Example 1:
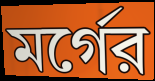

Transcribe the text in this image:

মর্গের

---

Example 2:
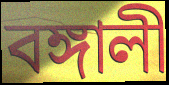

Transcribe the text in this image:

বঙ্গালী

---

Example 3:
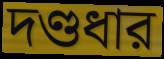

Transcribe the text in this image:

দণ্ডধার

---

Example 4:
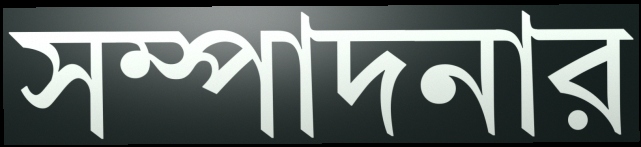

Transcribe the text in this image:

সম্পাদনার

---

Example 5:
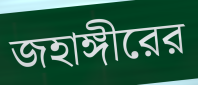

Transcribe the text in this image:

জহাঙ্গীরের